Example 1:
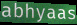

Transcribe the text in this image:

abhyaas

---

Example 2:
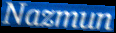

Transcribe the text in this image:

Nazmun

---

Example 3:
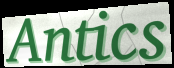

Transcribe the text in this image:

Antics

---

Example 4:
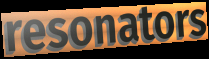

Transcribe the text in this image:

resonators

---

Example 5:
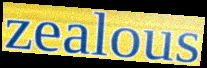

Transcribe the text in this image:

zealous